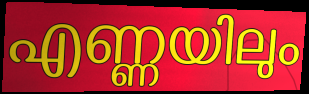
എണ്ണയിലും